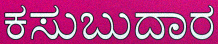
ಕಸುಬುದಾರ